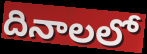
దినాలలో